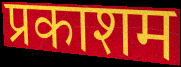
प्रकाशम